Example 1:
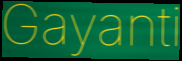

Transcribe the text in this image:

Gayanti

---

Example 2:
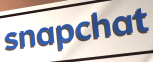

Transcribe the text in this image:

snapchat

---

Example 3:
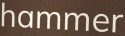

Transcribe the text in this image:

hammer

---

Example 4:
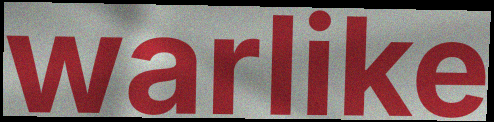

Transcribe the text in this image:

warlike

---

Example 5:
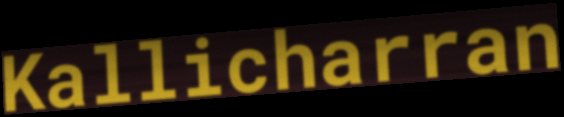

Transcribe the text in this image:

Kallicharran